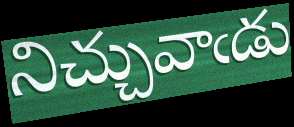
నిచ్చువాఁడు